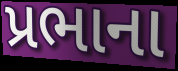
પ્રભાના